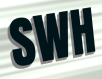
SWH